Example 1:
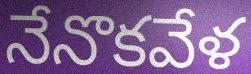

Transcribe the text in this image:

నేనొకవేళ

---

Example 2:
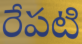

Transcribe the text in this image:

రేపటి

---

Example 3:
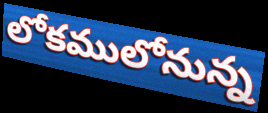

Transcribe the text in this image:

లోకములోనున్న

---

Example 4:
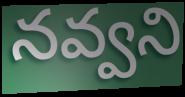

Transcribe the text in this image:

నవ్వని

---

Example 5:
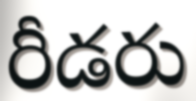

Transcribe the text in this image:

రీడరు